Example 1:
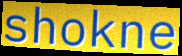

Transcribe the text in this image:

shokne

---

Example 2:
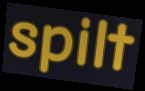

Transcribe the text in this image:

spilt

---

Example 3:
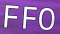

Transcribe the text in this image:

FFO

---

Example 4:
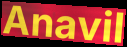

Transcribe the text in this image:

Anavil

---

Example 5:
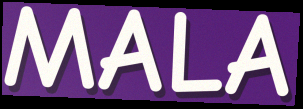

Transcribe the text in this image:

MALA